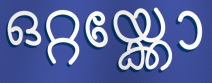
ഒറ്റയ്ക്കോ